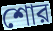
শোর